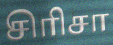
சிரிசா